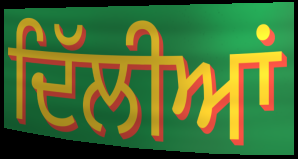
ਦਿੱਲੀਆਂ